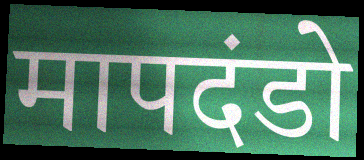
मापदंडो